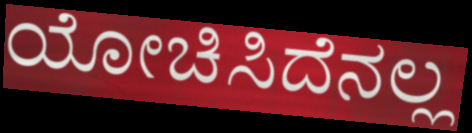
ಯೋಚಿಸಿದೆನಲ್ಲ